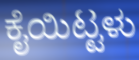
ಕೈಯಿಟ್ಟಳು